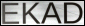
EKAD